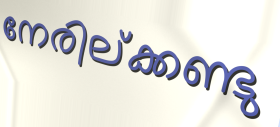
നേരില്ക്കണ്ടു